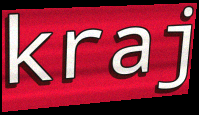
kraj